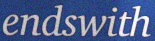
endswith